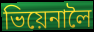
ভিয়েনালৈ